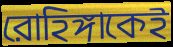
রোহিঙ্গাকেই